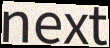
next